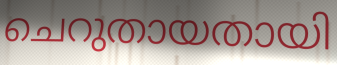
ചെറുതായതായി